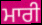
ਮਾਰੀ